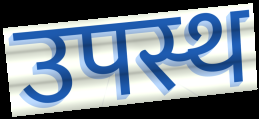
उपस्थ